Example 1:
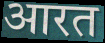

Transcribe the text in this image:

आरत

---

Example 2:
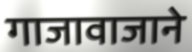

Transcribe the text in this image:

गाजावाजाने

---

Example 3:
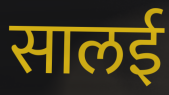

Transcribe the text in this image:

सालई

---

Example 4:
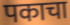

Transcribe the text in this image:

पकाचा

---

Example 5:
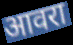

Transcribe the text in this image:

आवरा